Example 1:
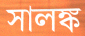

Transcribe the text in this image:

সালঙ্ক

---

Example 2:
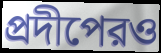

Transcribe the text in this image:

প্রদীপেরও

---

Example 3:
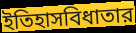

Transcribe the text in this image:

ইতিহাসবিধাতার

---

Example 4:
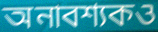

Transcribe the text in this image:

অনাবশ্যকও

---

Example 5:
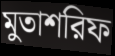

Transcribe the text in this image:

মুতাশরিফ